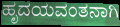
ಹೃದಯವಂತನಾಗಿ